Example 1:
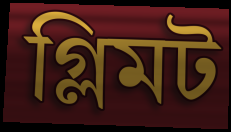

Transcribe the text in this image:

গ্লিমট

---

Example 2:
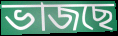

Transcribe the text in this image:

ভাজছে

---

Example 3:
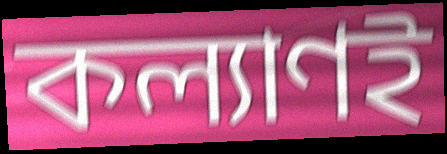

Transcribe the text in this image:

কল্যাণই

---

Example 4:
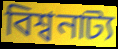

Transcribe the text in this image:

বিশ্বনাট্য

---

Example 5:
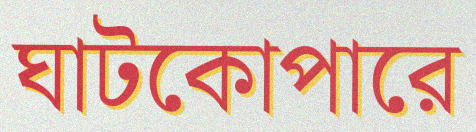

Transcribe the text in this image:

ঘাটকোপারে